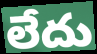
లేదు